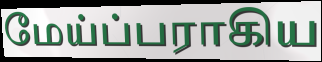
மேய்ப்பராகிய